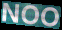
NOO